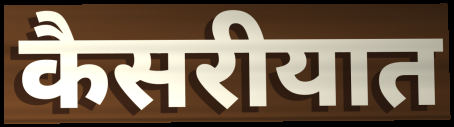
कैसरीयात